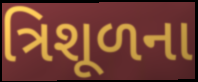
ત્રિશૂળના